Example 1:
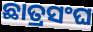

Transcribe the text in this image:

ଛାତ୍ରସଂଘ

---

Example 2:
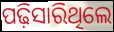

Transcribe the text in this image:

ପଢ଼ିସାରିଥିଲେ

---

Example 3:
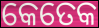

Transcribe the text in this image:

କେତେକ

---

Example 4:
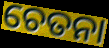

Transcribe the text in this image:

ଚେତନା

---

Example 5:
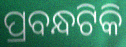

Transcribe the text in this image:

ପ୍ରବନ୍ଧଟିକି